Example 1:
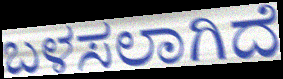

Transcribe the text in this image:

ಬಳಸಲಾಗಿದೆ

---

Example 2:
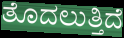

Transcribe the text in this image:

ತೊದಲುತ್ತಿದೆ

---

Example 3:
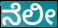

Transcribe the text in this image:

ನೆಲೀ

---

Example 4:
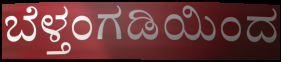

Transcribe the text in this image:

ಬೆಳ್ತಂಗಡಿಯಿಂದ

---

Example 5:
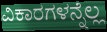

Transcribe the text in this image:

ವಿಕಾರಗಳನ್ನೆಲ್ಲ